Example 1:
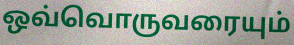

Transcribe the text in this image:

ஒவ்வொருவரையும்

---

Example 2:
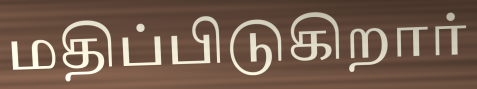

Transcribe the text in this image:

மதிப்பிடுகிறார்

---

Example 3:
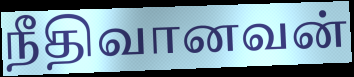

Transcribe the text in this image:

நீதிவானவன்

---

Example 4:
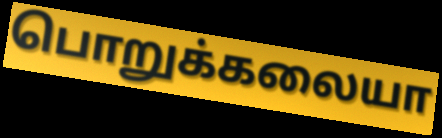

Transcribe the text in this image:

பொறுக்கலையா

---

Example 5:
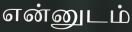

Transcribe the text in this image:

என்னுடம்